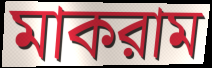
মাকরাম